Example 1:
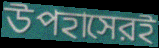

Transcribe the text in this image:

উপহাসেরই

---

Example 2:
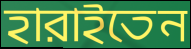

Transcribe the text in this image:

হারাইতেন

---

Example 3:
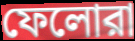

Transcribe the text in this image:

ফেলোরা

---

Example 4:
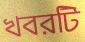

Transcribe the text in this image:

খবরটি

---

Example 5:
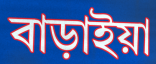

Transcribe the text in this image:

বাড়াইয়া